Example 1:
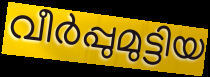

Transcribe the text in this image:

വീർപ്പുമുട്ടിയ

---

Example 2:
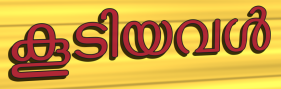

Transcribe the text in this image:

കൂടിയവൾ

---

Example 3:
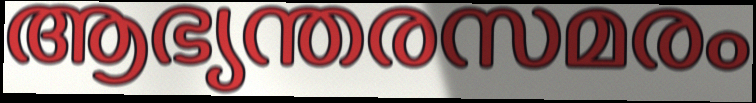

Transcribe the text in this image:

ആഭ്യന്തരസമരം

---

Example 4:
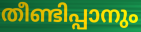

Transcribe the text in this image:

തീണ്ടിപ്പാനും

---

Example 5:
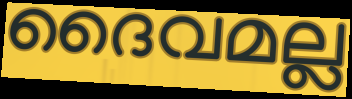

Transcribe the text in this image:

ദൈവമല്ല